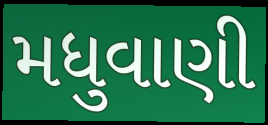
મધુવાણી